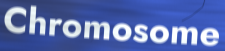
Chromosome